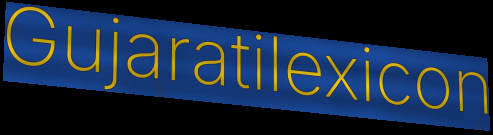
Gujaratilexicon